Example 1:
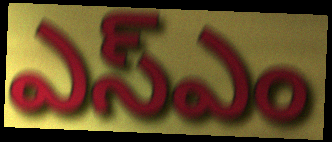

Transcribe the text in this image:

ఎస్ఎం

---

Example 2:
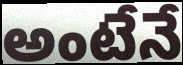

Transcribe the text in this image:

అంటేనే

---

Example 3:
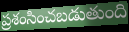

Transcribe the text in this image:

ప్రశంసించబడుతుంది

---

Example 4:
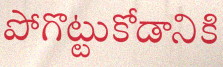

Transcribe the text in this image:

పోగొట్టుకోడానికి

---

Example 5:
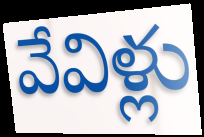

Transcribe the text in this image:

వేవిళ్లు